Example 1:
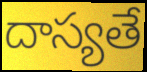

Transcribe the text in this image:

దాస్యతే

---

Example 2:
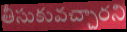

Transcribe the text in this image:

తీసుకువచ్చారని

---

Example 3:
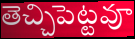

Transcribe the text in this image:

తెచ్చిపెట్టవూ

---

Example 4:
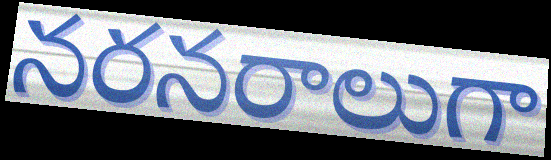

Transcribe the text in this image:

నరనరాలుగా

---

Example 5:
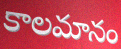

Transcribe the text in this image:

కాలమానం